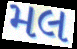
મલ